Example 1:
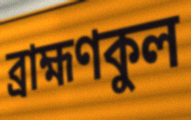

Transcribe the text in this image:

ব্রাহ্মণকুল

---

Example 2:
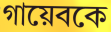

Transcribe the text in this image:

গায়েবকে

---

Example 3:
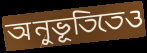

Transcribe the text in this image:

অনুভূতিতেও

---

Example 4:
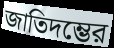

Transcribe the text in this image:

জাতিদম্ভের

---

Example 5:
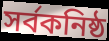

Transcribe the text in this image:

সর্বকনিষ্ঠ